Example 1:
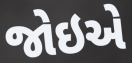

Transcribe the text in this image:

જોઇએ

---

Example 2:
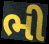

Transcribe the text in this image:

ભી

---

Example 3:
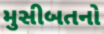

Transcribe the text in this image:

મુસીબતનો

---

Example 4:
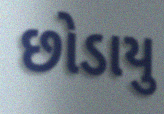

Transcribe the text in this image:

છોડાયુ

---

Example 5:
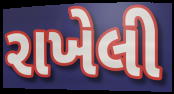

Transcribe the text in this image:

રાખેલી